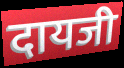
दायजी